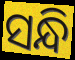
ସନ୍ଧି